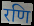
रणि